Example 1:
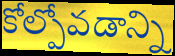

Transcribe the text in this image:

కోల్పోవడాన్ని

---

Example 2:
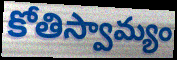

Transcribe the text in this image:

కోతిస్వామ్యం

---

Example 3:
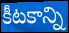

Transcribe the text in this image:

కీటకాన్ని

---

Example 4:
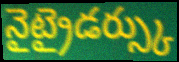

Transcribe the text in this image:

నైట్రైడర్స్కు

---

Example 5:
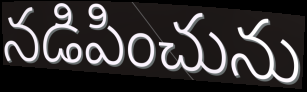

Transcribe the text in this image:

నడిపించును